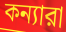
কন্যারা